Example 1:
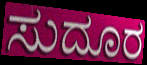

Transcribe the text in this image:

ಸುದೂರ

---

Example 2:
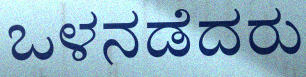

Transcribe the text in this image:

ಒಳನಡೆದರು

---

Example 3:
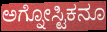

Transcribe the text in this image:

ಅಗ್ನೋಸ್ಟಿಕನೂ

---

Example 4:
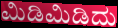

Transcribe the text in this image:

ಮಿಡಿಮಿಡಿದು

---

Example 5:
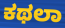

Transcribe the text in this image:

ಕಥಲಾ